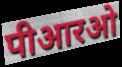
पीआरओ